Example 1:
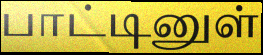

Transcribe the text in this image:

பாட்டினுள்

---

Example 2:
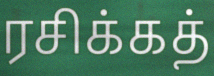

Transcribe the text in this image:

ரசிக்கத்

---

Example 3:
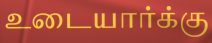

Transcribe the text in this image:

உடையார்க்கு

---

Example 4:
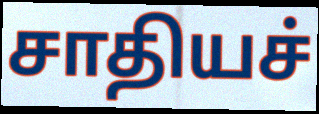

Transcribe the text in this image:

சாதியச்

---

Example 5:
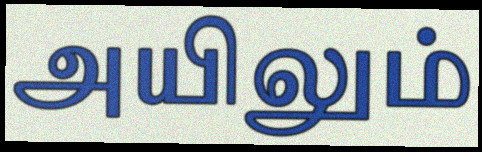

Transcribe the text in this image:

அயிலும்